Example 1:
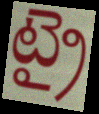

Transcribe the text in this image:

ట్రై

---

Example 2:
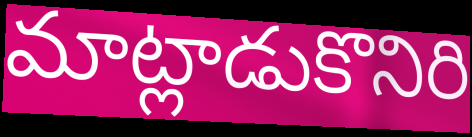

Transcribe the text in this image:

మాట్లాడుకొనిరి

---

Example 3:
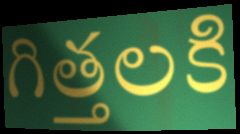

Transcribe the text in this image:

గిత్తలకి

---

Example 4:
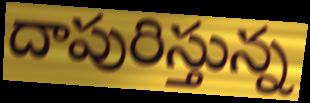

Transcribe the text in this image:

దాపురిస్తున్న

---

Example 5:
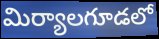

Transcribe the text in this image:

మిర్యాలగూడలో